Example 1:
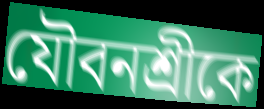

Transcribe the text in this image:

যৌবনশ্রীকে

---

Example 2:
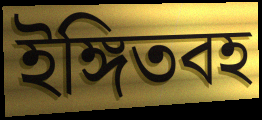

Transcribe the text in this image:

ইঙ্গিতবহ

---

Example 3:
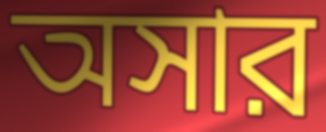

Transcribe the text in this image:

অসার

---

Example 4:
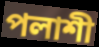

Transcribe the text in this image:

পলাশী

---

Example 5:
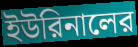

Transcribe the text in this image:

ইউরিনালের